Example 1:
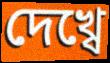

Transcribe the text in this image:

দেখ্বে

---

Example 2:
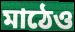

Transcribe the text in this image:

মাঠেও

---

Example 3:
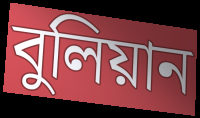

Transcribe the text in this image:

বুলিয়ান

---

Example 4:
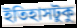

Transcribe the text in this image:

ইতিহাসটুকু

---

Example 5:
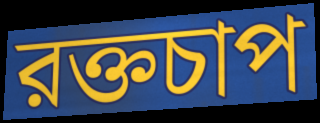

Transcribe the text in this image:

রক্তচাপ